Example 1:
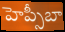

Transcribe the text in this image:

హెప్సీబా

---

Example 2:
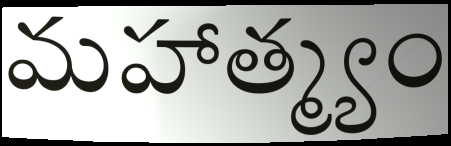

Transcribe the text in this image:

మహాత్మ్యం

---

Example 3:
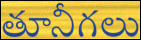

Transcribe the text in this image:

తూనీగలు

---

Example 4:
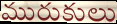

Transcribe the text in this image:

మురుకులు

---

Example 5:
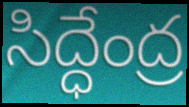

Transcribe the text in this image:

సిద్ధేంద్ర